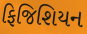
ફિજિશિયન